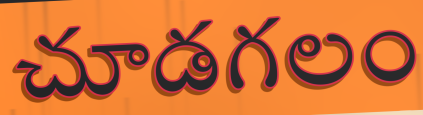
చూడగలం